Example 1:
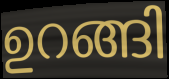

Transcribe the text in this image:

ഉറങ്ങി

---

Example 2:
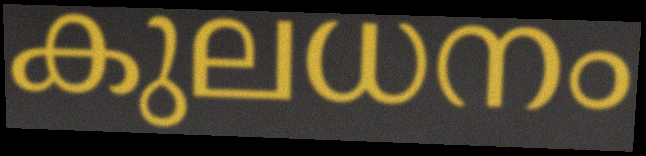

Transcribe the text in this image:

കുലധനം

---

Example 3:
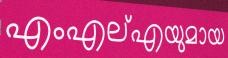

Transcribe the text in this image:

എംഎല്എയുമായ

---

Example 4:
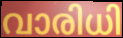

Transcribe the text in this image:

വാരിധി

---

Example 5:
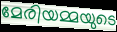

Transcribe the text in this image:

മേരിയമ്മയുടെ